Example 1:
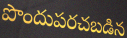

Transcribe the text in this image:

పొందుపరచబడిన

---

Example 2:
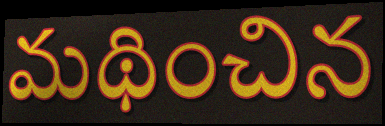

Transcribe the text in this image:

మథించిన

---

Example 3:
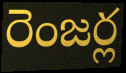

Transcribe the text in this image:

రెంజర్ల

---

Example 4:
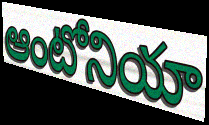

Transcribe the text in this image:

ఆంటోనియా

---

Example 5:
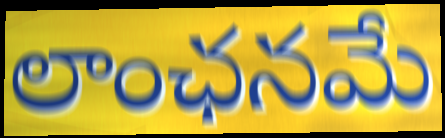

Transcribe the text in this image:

లాంఛనమే